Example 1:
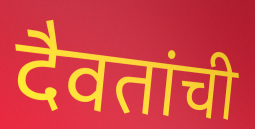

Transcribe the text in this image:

दैवतांची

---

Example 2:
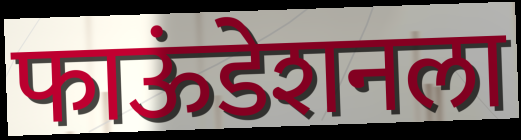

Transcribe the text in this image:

फाऊंडेशनला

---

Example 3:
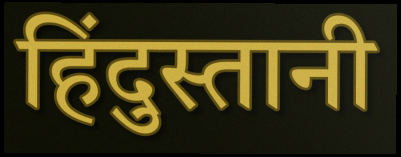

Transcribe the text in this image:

हिंदुस्तानी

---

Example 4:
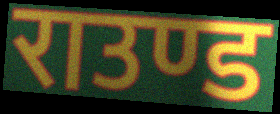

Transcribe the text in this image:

राउण्ड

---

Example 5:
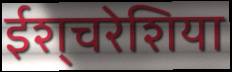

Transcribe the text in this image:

ईश्चरेशिया